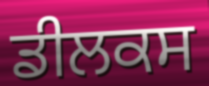
ਡੀਲਕਸ